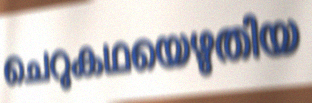
ചെറുകഥയെഴുതിയ